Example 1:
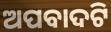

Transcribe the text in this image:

ଅପବାଦଟି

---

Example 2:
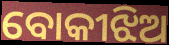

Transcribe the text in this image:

ବୋକୀଝିଅ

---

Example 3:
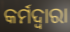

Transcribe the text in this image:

କର୍ମଦ୍ବାରା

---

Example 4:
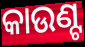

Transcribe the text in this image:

କାଉଣ୍ଟ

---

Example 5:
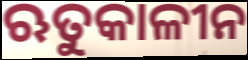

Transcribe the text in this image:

ଋତୁକାଳୀନ